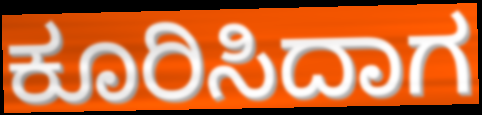
ಕೂರಿಸಿದಾಗ